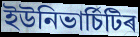
ইউনিভাৰ্চিটিৰ